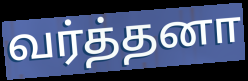
வர்த்தனா